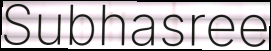
Subhasree